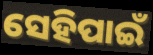
ସେହିପାଇଁ